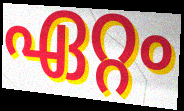
ഏറ്റം